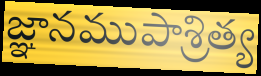
జ్ఞానముపాశ్రిత్య